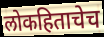
लोकहिताचेच